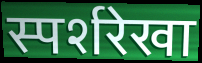
स्पर्शरेखा